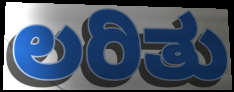
ಲರಿತು